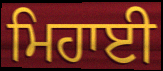
ਮਿਹਾਈ